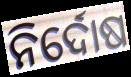
ନିର୍ଦୋଷ